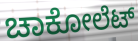
ಚಾಕೋಲೆಟ್